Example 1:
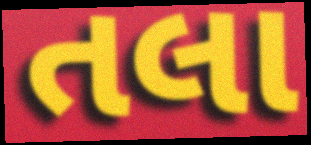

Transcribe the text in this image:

તલા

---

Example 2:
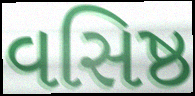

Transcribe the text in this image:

વસિષ્ઠ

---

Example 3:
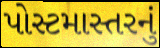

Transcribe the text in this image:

પોસ્ટમાસ્તરનું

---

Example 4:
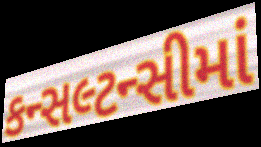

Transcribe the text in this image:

કન્સલ્ટન્સીમાં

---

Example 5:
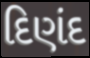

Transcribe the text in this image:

દિણંદ